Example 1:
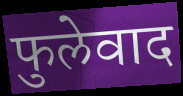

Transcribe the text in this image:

फुलेवाद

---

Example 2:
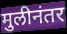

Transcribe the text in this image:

मुलीनंतर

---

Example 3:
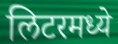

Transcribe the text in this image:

लिटरमध्ये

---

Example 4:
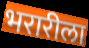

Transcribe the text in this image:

भरारीला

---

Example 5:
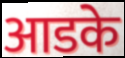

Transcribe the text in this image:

आडके